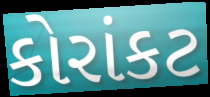
કોરાંકટ